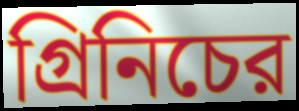
গ্রিনিচের